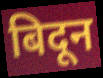
बिदून